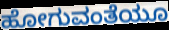
ಹೋಗುವಂತೆಯೂ